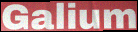
Galium